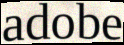
adobe